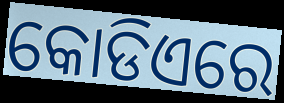
କୋଡିଏରେ